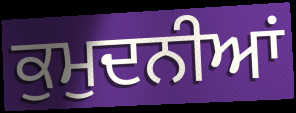
ਕੁਮੁਦਨੀਆਂ